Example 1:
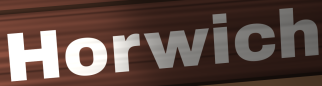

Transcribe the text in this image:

Horwich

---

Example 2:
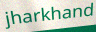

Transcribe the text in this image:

jharkhand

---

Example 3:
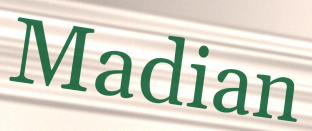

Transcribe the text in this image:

Madian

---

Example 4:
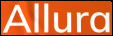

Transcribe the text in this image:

Allura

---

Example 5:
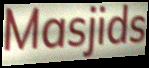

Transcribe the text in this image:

Masjids